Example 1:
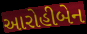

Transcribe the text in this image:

આરોહીબેન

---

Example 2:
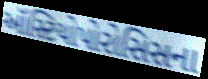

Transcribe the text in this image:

ઑસ્ટિયોપોરોસિસના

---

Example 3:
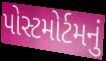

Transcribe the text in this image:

પોસ્ટમોર્ટમનું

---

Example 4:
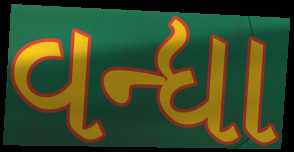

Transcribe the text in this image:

વન્દ્યા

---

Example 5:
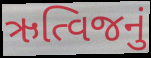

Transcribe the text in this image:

ઋત્વિજનું